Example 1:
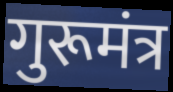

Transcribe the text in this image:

गुरूमंत्र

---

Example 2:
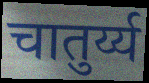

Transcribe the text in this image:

चातुर्य्य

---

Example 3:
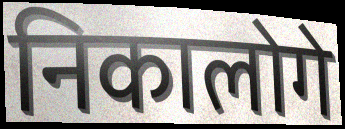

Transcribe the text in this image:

निकालोगे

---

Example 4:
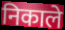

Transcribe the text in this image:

निकाले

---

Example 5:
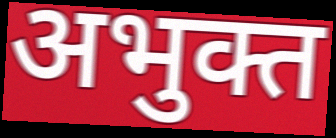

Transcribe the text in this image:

अभुक्त